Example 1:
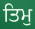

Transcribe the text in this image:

ਤਿਮੁ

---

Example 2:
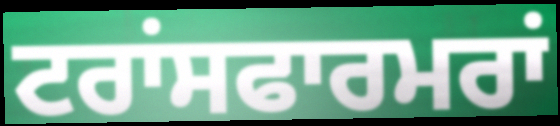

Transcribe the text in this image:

ਟਰਾਂਸਫਾਰਮਰਾਂ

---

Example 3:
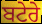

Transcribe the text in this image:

ਬਟੇਰੇ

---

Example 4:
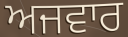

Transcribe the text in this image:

ਅਜਵਾਰ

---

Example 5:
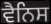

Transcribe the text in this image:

ਵੈਨਿਸ